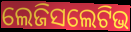
ଲେଜିସଲେଟିଭ